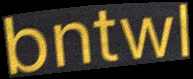
bntwl